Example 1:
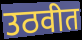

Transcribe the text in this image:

उठवीत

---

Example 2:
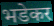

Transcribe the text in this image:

भडेकर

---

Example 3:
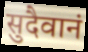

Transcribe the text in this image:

सुदैवानं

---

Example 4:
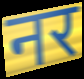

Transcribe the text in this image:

नर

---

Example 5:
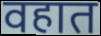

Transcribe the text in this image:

वहात